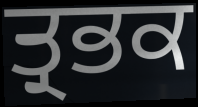
ਤ੍ਰਭਕ